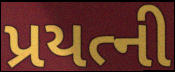
પ્રયત્ની